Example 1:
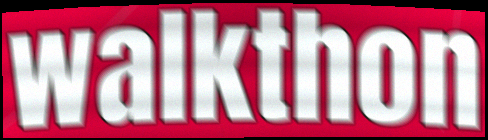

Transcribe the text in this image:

walkthon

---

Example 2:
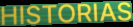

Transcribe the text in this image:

HISTORIAS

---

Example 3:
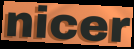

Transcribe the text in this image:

nicer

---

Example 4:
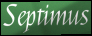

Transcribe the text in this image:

Septimus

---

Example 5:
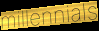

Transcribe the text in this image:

millennials